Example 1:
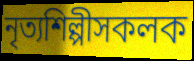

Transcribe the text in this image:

নৃত্যশিল্পীসকলক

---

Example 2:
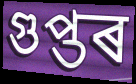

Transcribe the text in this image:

গুপ্তৰ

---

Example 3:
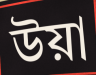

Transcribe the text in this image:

উয়া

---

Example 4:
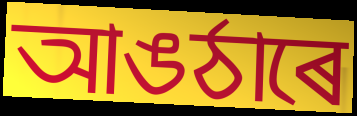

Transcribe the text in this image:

আঙঠাৰে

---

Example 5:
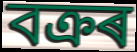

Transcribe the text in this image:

বক্ৰৰ